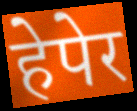
हेपेर